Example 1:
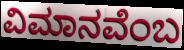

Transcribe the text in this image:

ವಿಮಾನವೆಂಬ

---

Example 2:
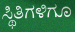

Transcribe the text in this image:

ಸ್ಥಿತಿಗಳಿಗೂ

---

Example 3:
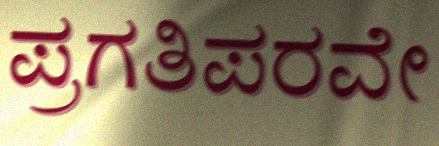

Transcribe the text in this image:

ಪ್ರಗತಿಪರವೇ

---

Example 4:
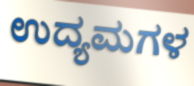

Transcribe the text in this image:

ಉದ್ಯಮಗಳ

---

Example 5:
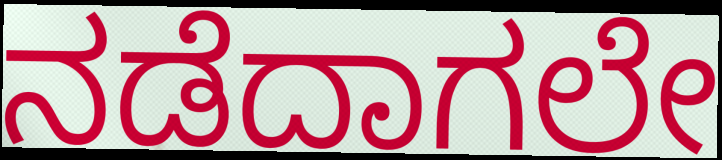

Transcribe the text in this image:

ನಡೆದಾಗಲೇ